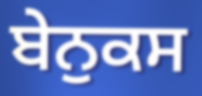
ਬੇਨੁਕਸ